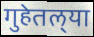
गुहेतल्या